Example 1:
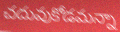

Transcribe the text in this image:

చదువుకోడమన్నా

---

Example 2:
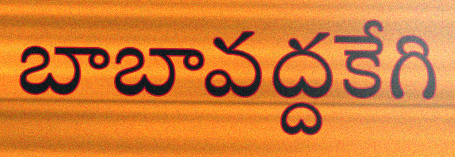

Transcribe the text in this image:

బాబావద్దకేగి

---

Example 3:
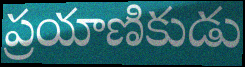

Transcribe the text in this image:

ప్రయాణికుడు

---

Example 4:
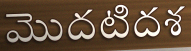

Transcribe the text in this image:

మొదటిదశ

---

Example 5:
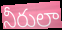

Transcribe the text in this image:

నీరులా